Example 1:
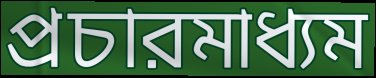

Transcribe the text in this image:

প্রচারমাধ্যম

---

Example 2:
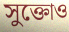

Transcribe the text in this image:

সুক্তোও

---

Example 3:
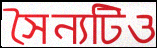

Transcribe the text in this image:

সৈন্যটিও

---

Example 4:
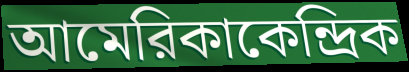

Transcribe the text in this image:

আমেরিকাকেন্দ্রিক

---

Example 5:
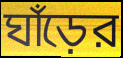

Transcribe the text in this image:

ঘাঁড়ের